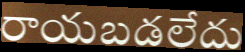
రాయబడలేదు